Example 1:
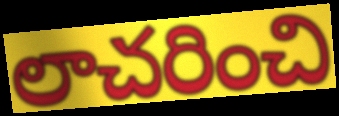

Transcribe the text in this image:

లాచరించి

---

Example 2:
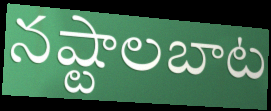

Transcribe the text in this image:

నష్టాలబాట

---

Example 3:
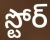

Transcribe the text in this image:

స్టోర్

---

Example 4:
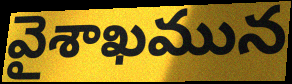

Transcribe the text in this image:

వైశాఖమున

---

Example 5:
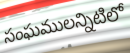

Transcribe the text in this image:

సంఘములన్నిటిలో